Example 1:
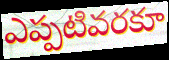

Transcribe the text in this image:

ఎప్పటివరకూ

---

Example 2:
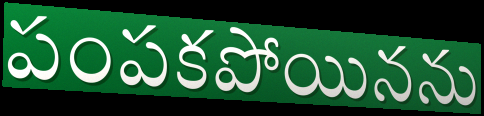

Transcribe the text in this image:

పంపకపోయినను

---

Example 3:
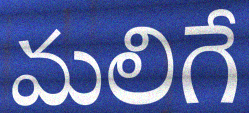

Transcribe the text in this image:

మలిగే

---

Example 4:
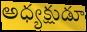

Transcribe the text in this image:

అధ్యక్షుడూ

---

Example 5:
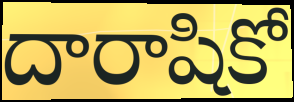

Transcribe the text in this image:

దారాషికో